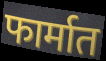
फार्मात